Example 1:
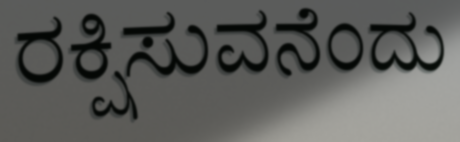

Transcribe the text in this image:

ರಕ್ಷಿಸುವನೆಂದು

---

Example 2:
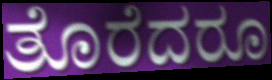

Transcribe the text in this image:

ತೊರೆದರೂ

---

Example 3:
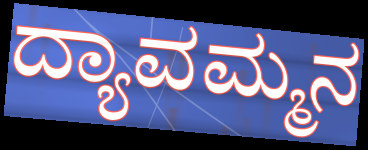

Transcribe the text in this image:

ದ್ಯಾವಮ್ಮನ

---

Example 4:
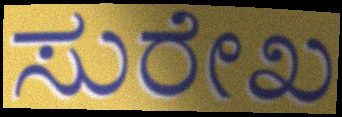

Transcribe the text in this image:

ಸುರೇಖ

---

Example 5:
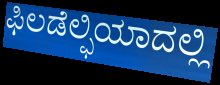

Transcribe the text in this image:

ಫಿಲಡೆಲ್ಫಿಯಾದಲ್ಲಿ